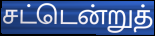
சட்டென்றுத்